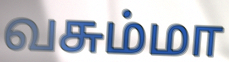
வசும்மா